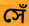
সেঁ